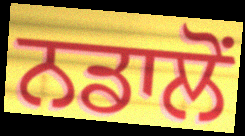
ਨਡਾਲੋਂ